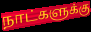
நாட்களுக்கு